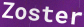
Zoster